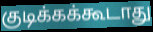
குடிக்கக்கூடாது